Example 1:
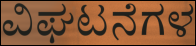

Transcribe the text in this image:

ವಿಘಟನೆಗಳ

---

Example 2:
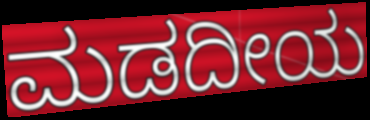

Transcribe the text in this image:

ಮಡದೀಯ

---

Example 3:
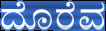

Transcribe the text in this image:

ದೊರೆವ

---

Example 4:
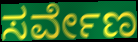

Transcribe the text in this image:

ಸರ್ವೇಣ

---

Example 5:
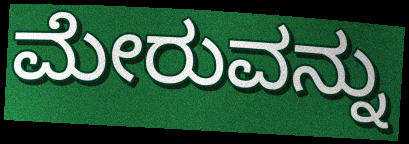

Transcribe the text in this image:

ಮೇರುವನ್ನು